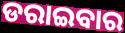
ଡରାଇବାର